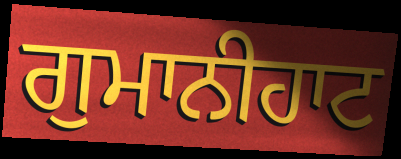
ਗੁਮਾਨੀਹਾਟ